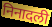
निनादली